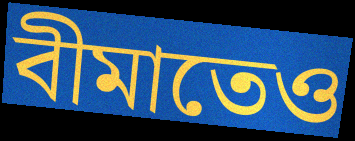
বীমাতেও